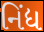
નિંદ્ય